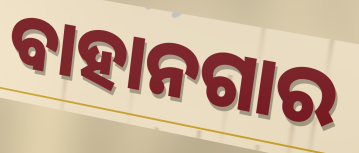
ବାହାନଗାର